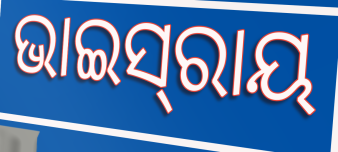
ଭାଇସ୍‍ରାୟ